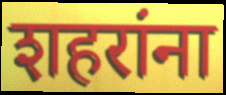
शहरांना